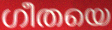
ഗീതയെ